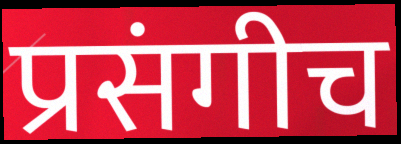
प्रसंगीच